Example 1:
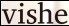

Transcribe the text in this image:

vishe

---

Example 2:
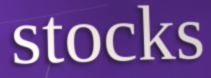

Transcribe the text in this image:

stocks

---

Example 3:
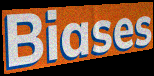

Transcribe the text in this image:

Biases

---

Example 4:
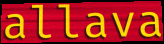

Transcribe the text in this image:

allava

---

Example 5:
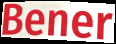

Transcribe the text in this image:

Bener